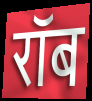
रॉब